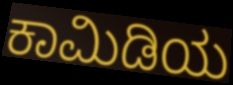
ಕಾಮಿಡಿಯ